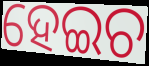
ହେଇଚ